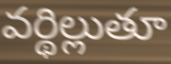
వర్థిల్లుతూ